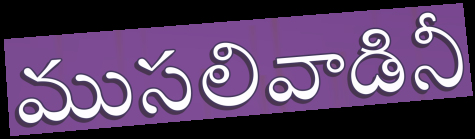
ముసలివాడినీ